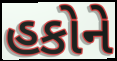
હકોને